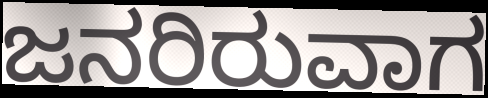
ಜನರಿರುವಾಗ